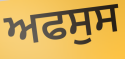
ਅਫਸੁਸ